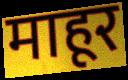
माहूर